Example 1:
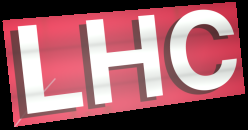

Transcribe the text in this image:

LHC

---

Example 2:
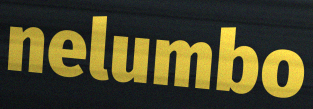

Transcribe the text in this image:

nelumbo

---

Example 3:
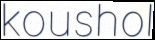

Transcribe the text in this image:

koushol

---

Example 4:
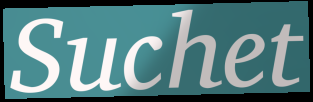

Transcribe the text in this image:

Suchet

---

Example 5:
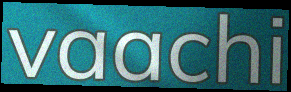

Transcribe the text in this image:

vaachi